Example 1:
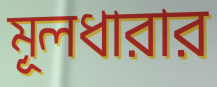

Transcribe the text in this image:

মূলধারার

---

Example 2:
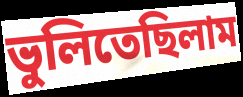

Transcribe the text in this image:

ভুলিতেছিলাম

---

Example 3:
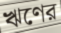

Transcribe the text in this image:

ঋণের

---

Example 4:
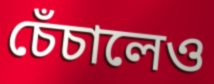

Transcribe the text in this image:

চেঁচালেও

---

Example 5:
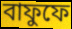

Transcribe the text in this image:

বাফুফে